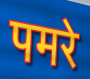
पमरे